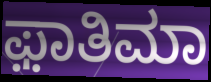
ಫ಼ಾತಿಮಾ